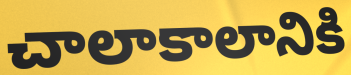
చాలాకాలానికి